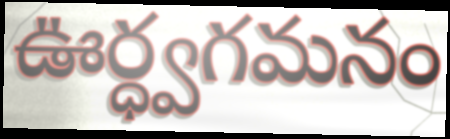
ఊర్ధ్వగమనం